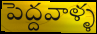
పెద్దవాళ్ళ